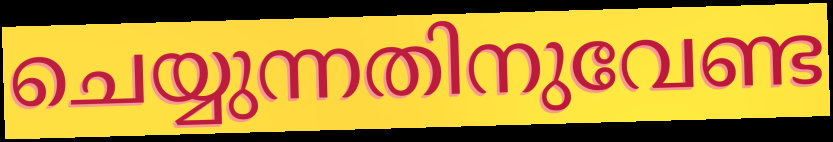
ചെയ്യുന്നതിനുവേണ്ട